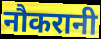
नौकरानी